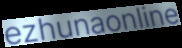
ezhunaonline